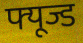
फ्यूज्ड